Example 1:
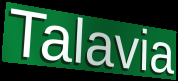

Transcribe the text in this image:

Talavia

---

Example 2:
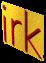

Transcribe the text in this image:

irk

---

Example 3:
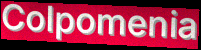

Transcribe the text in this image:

Colpomenia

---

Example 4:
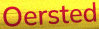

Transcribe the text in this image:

Oersted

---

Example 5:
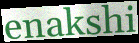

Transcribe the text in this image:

enakshi